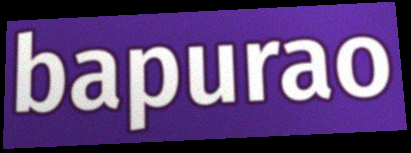
bapurao